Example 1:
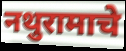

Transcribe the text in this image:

नथुरामाचे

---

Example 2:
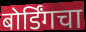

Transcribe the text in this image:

बोर्डिंगचा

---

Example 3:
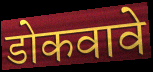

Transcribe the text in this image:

डोकवावे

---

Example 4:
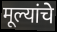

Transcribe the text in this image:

मूल्यांचे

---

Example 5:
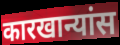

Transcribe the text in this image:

कारखान्यांस